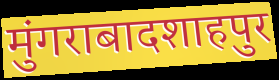
मुंगराबादशाहपुर